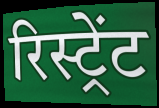
रिस्ट्रेंट